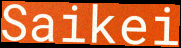
Saikei